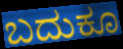
ಬದುಕೂ